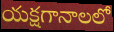
యక్షగానాలలో